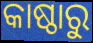
କାଷ୍ଠାରୁ